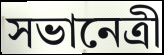
সভানেত্ৰী